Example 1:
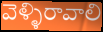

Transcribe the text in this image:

వెళ్ళిరావాలి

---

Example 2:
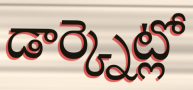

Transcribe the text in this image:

డార్క్నెట్లో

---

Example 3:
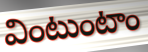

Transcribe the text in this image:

వింటుంటాం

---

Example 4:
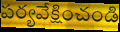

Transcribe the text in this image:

పర్యవేక్షించండి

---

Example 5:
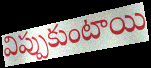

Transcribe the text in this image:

విప్పుకుంటాయి